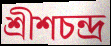
শ্রীশচন্দ্র